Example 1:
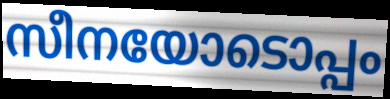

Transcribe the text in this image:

സീനയോടൊപ്പം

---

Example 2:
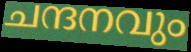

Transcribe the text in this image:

ചന്ദനവും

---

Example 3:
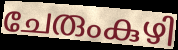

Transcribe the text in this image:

ചേരുംകുഴി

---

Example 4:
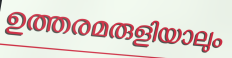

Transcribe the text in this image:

ഉത്തരമരുളിയാലും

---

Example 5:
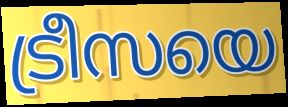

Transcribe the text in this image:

ട്രീസയെ